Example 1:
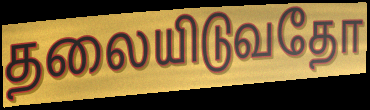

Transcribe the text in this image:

தலையிடுவதோ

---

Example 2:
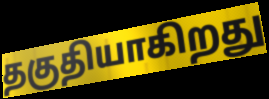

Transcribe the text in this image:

தகுதியாகிறது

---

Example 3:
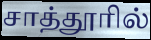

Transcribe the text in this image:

சாத்தூரில்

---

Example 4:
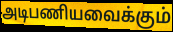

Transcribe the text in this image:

அடிபணியவைக்கும்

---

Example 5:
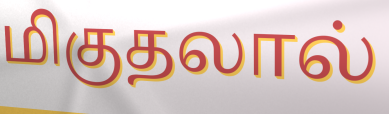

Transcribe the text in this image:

மிகுதலால்